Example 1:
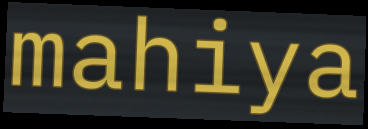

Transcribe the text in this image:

mahiya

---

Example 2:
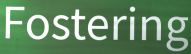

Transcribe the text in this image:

Fostering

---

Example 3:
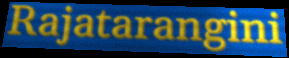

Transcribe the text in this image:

Rajatarangini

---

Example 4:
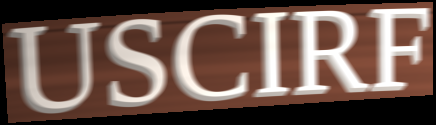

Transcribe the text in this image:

USCIRF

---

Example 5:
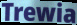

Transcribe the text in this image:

Trewia